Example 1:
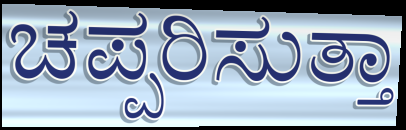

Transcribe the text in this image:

ಚಪ್ಪರಿಸುತ್ತಾ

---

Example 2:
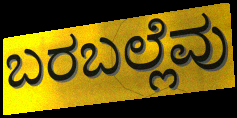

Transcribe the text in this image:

ಬರಬಲ್ಲೆವು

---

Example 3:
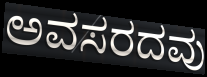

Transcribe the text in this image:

ಅವಸರದವು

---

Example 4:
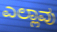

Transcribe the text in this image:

ಎಲ್ಲಾವು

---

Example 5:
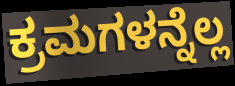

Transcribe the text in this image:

ಕ್ರಮಗಳನ್ನೆಲ್ಲ